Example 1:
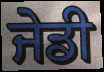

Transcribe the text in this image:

ਜੇਡੀ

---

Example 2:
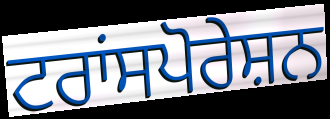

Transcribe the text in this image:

ਟਰਾਂਸਪੋਰੇਸ਼ਨ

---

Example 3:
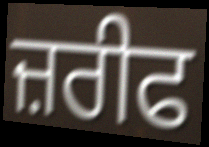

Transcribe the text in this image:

ਜ਼ਰੀਫ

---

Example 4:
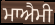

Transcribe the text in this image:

ਮਾਐਮੀ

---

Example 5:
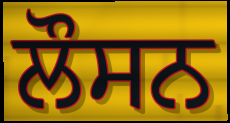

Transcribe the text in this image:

ਲੌਸਨ